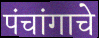
पंचांगाचे